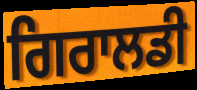
ਗਿਰਾਲਡੀ